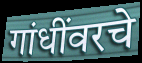
गांधींवरचे